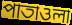
পাতাওলা